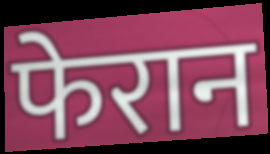
फेरान